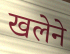
खलेने